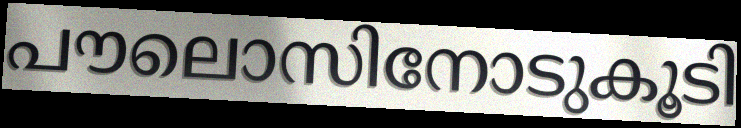
പൗലൊസിനോടുകൂടി